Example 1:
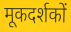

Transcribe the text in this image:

मूकदर्शकों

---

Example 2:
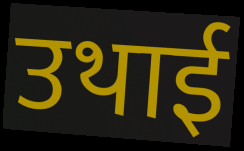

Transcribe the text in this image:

उथाई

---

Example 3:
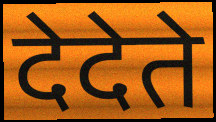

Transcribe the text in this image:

देदेते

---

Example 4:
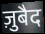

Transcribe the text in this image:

ज़ुबैद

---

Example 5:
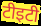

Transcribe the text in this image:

टीइटी